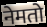
नेमतो